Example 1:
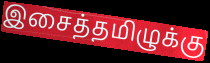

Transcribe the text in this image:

இசைத்தமிழுக்கு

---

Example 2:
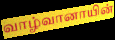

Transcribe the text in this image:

வாழ்வானாயின்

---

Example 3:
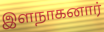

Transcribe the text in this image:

இளநாகனார்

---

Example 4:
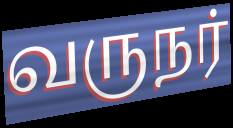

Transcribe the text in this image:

வருநர்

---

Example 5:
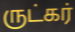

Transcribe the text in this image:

ருட்கர்